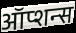
ऑप्शन्स